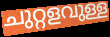
ചുറ്റളവുള്ള